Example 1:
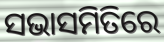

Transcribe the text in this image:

ସଭାସମିତିରେ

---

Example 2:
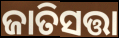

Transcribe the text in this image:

ଜାତିସତ୍ତା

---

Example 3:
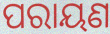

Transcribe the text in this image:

ପରାୟଣ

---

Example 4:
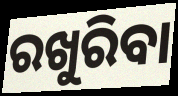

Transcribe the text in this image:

ରଖୁରିବା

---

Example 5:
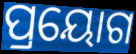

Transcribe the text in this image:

ପ୍ରୟୋଗ